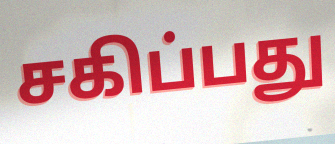
சகிப்பது